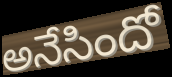
అనేసిందో